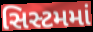
સિસ્ટમમાં